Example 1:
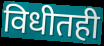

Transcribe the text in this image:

विधीतही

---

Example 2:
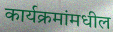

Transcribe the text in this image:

कार्यक्रमांमधील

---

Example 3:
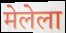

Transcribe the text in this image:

मेलेला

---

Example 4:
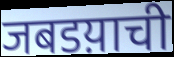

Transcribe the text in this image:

जबडय़ाची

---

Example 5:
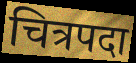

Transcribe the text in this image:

चित्रपदा